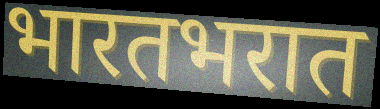
भारतभरात